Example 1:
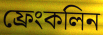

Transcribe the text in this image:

ফ্ৰেংকলিন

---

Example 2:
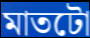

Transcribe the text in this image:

মাতটো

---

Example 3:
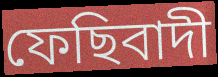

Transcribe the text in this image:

ফেছিবাদী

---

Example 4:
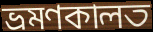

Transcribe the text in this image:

ভ্ৰমণকালত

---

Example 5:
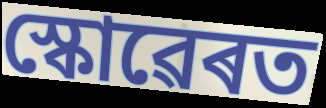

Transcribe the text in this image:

স্কোৱেৰত